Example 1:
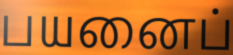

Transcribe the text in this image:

பயனைப்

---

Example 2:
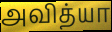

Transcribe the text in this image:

அவித்யா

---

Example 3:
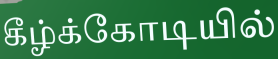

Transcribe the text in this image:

கீழ்க்கோடியில்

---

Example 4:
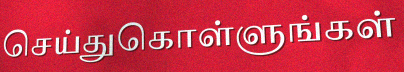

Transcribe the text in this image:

செய்துகொள்ளுங்கள்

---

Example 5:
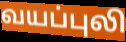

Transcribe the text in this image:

வயப்புலி